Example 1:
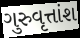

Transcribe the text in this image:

ગુરુવૃત્તાંશ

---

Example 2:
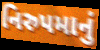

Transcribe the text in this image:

નિરુપમાનું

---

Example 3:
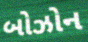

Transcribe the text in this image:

બોઝોન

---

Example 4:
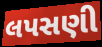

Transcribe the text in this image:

લપસણી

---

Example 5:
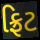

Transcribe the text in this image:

ફ્રિટ